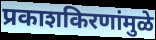
प्रकाशकिरणांमुळे